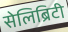
सेलिब्रिटी